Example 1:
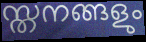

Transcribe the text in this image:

സ്തനങ്ങളും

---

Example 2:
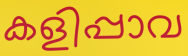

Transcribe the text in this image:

കളിപ്പാവ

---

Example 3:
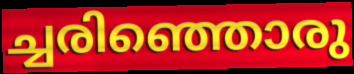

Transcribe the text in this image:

ച്ചരിഞ്ഞൊരു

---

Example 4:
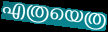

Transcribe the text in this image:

എത്രയെത്ര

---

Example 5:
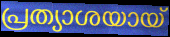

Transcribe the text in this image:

പ്രത്യാശയായ്